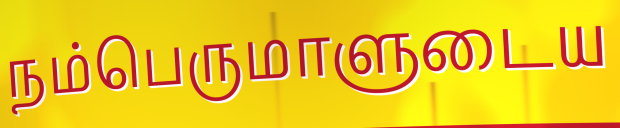
நம்பெருமாளுடைய